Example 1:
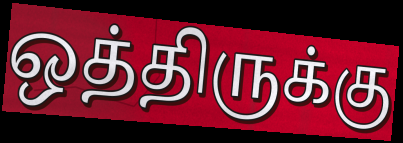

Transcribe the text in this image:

ஒத்திருக்கு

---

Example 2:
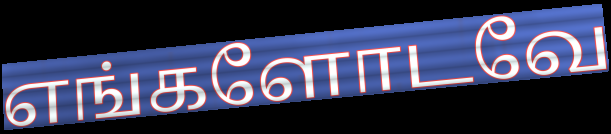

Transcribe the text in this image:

எங்களோடவே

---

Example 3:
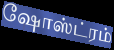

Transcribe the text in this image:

ஷோஸ்ட்ரம்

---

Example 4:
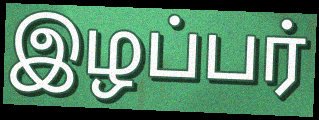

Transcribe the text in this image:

இழப்பர்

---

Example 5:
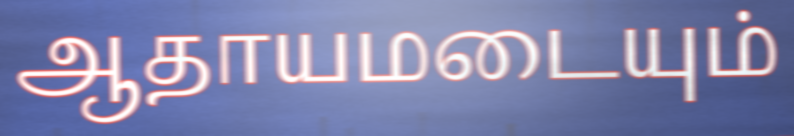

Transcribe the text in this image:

ஆதாயமடையும்